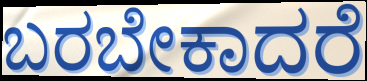
ಬರಬೇಕಾದರೆ